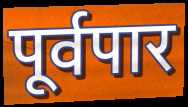
पूर्वपार